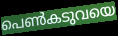
പെൺകടുവയെ